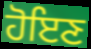
ਹੋਇਣ